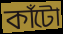
কাঁটো